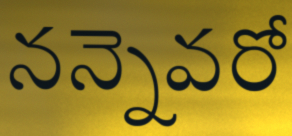
నన్నెవరో